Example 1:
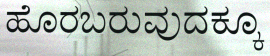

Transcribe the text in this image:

ಹೊರಬರುವುದಕ್ಕೂ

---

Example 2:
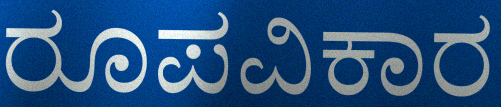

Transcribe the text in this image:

ರೂಪವಿಕಾರ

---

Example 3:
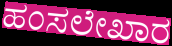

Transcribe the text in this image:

ಹಂಸಲೇಖಾರ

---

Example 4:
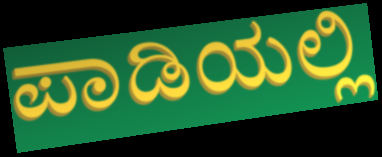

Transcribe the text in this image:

ಪಾಡಿಯಲ್ಲಿ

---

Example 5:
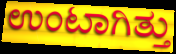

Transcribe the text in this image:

ಉಂಟಾಗಿತ್ತು